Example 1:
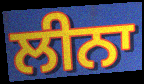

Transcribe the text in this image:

ਲੀਨਾ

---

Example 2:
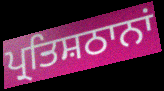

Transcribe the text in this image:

ਪ੍ਰਤਿਸ਼ਠਾਨਾਂ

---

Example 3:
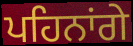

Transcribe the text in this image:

ਪਹਿਨਾਂਗੇ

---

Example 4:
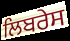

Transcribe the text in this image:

ਲਿਬਰੇਸ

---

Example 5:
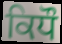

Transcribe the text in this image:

ਕਿਧੌ